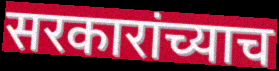
सरकारांच्याच